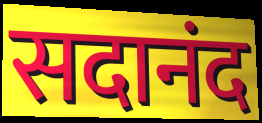
सदानंद